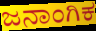
ಜನಾಂಗಿಕ